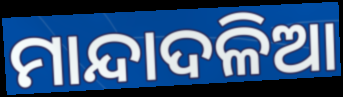
ମାନ୍ଦାଦଳିଆ